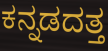
ಕನ್ನಡದತ್ತ